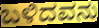
ಬಳಿದವನು